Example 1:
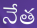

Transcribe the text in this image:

నేత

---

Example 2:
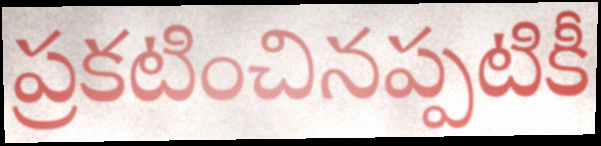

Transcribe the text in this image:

ప్రకటించినప్పటికీ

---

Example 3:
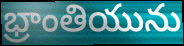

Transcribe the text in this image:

భ్రాంతియును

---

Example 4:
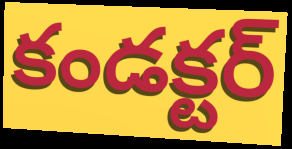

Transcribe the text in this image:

కండక్టర్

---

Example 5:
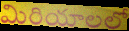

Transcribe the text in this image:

మిరియాలలో